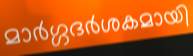
മാർഗ്ഗദർശകമായി